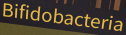
Bifidobacteria